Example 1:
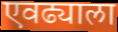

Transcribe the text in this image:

एवढ्याला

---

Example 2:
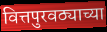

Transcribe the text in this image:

वित्तपुरवठ्याच्या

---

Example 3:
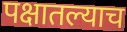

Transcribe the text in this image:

पक्षातल्याच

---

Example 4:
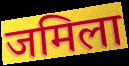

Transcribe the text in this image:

जमिला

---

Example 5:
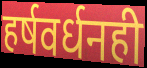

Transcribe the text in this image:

हर्षवर्धनही